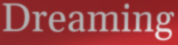
Dreaming